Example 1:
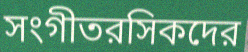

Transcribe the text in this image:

সংগীতরসিকদের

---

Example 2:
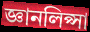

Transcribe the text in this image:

জ্ঞানলিপ্সা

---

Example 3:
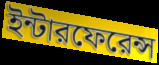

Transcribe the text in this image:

ইন্টারফেরেন্স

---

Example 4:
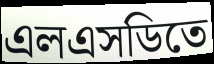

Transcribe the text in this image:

এলএসডিতে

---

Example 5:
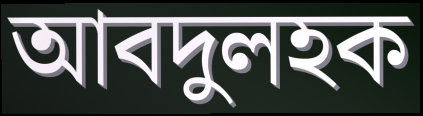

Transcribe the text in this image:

আবদুলহক